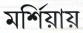
মর্শিয়ায়